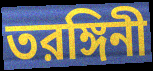
তরঙ্গিনী